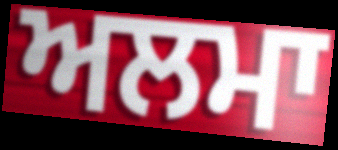
ਅਲਮਾ